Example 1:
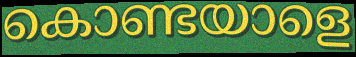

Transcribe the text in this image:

കൊണ്ടയാളെ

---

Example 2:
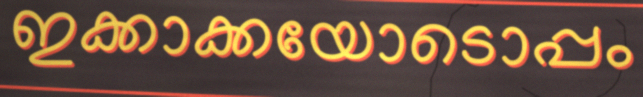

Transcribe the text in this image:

ഇക്കാക്കയോടൊപ്പം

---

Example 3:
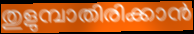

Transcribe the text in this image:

തുളുമ്പാതിരിക്കാൻ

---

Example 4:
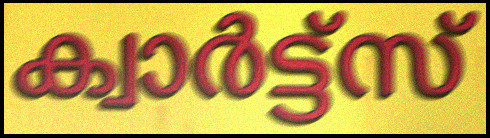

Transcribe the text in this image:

ക്വാർട്ട്സ്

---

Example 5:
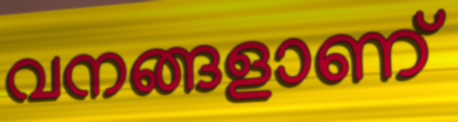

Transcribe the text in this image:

വനങ്ങളാണ്